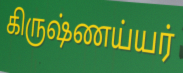
கிருஷ்ணய்யர்